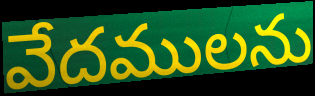
వేదములను